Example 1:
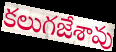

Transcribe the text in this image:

కలుగజేశావు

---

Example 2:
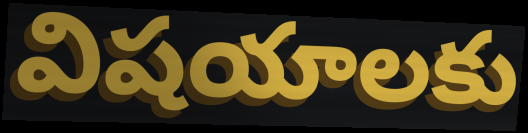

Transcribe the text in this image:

విషయాలకు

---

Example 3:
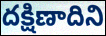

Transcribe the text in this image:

దక్షిణాదిని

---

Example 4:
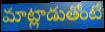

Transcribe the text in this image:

మాట్లాడుతోంటే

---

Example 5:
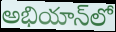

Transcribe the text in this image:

అభియాన్‌లో